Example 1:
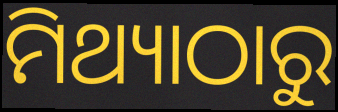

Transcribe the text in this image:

ମିଥ୍ୟାଠାରୁ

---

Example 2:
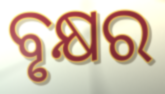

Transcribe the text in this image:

ବୃକ୍ଷର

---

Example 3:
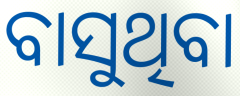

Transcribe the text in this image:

ବାସୁଥିବା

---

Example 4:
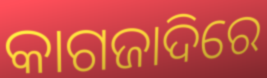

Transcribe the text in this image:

କାଗଜାଦିରେ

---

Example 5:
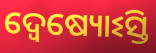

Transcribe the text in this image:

ଦ୍ୱେଷ୍ୟୋଽସ୍ତି